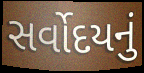
સર્વોદયનું